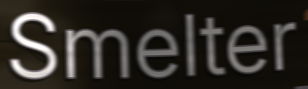
Smelter